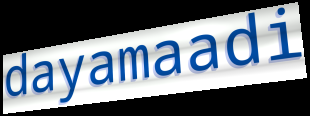
dayamaadi